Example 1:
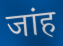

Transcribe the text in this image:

जांह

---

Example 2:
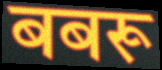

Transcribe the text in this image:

बबरू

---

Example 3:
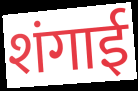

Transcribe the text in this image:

शंगाई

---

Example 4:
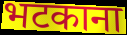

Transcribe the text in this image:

भटकाना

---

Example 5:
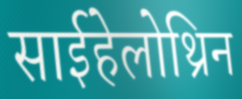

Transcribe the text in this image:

साईहेलोथ्रिन